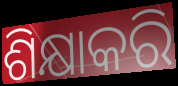
ଶିକ୍ଷାକରି